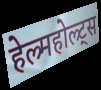
हेल्महोल्ट्स